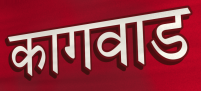
कागवाड